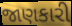
જાણકારી